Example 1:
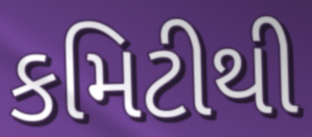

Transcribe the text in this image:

કમિટીથી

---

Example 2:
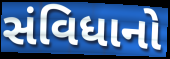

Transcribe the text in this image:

સંવિધાનો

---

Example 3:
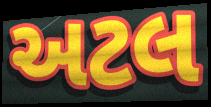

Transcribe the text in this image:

અટલ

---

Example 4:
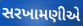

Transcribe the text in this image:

સરખામણીએ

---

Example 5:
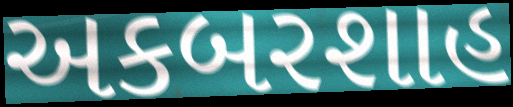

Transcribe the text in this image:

અકબરશાહ